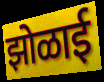
झोळाई